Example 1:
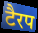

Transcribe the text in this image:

टैरप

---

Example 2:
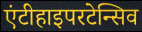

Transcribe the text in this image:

एंटीहाइपरटेन्सिव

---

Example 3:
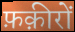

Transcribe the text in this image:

फ़क़ीरों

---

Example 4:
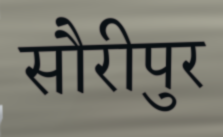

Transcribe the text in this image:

सौरीपुर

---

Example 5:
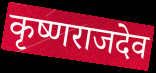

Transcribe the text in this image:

कृष्णराजदेव